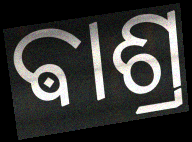
ଵାଶ୍ର